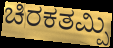
ಚಿರಕತಮ್ಪಿ